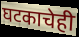
घटकाचेही